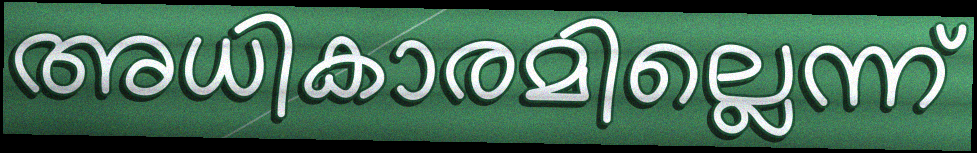
അധികാരമില്ലെന്ന്